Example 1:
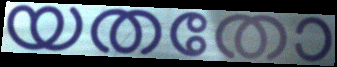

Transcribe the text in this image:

യതതോ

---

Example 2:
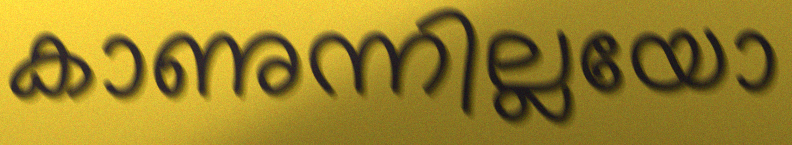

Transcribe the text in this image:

കാണുന്നില്ലയോ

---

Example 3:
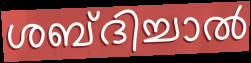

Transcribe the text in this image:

ശബ്ദിച്ചാൽ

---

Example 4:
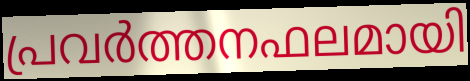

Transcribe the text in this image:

പ്രവർത്തനഫലമായി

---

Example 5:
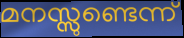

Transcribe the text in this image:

മനസ്സുണ്ടെന്ന്